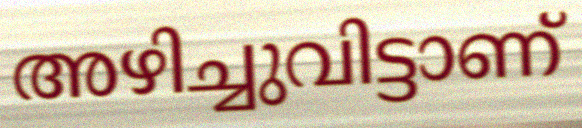
അഴിച്ചുവിട്ടാണ്